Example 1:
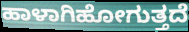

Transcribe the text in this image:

ಹಾಳಾಗಿಹೋಗುತ್ತದೆ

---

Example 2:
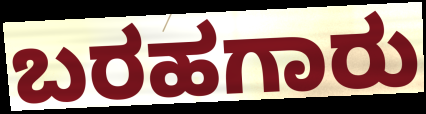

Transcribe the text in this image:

ಬರಹಗಾರು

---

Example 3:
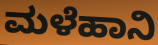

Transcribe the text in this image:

ಮಳೆಹಾನಿ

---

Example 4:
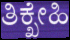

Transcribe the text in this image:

ತಿಕ್ಖೇಹಿ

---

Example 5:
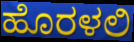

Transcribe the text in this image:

ಹೊರಳಲಿ